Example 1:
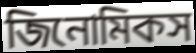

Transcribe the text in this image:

জিনোমিকস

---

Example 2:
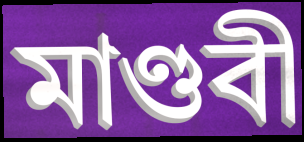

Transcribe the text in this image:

মাণ্ডবী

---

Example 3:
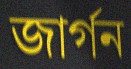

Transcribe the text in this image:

জার্গন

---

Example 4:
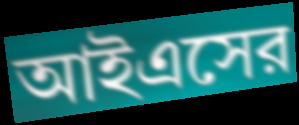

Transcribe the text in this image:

আইএসের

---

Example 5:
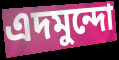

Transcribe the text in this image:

এদমুন্দো